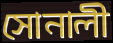
সোনালী